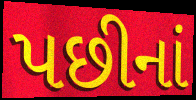
પછીનાં